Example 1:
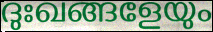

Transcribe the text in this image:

ദുഃഖങ്ങളേയും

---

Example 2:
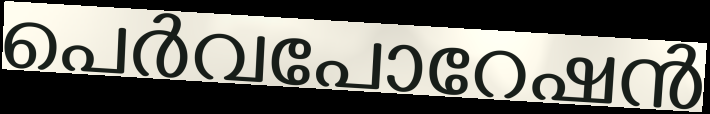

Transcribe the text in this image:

പെർവപോറേഷൻ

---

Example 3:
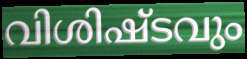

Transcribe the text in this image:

വിശിഷ്ടവും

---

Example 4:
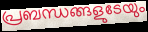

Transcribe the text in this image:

പ്രബന്ധങ്ങളുടേയും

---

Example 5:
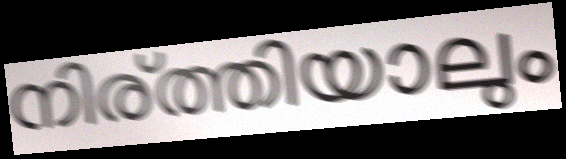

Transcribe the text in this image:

നിര്ത്തിയാലും